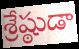
శ్రేష్ఠుడా